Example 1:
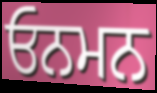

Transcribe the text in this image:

ਓਨਮਨ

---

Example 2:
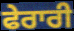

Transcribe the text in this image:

ਫੇਰਾਰੀ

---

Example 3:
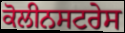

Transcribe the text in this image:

ਕੋਲੀਨਸਟਰੇਸ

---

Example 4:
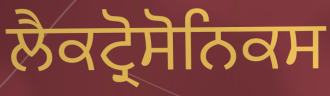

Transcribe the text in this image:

ਲੈਕਟ੍ਰੋਸੋਨਿਕਸ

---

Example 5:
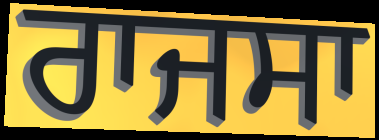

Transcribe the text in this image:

ਰਾਜਸਾ